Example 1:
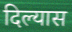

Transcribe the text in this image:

दिल्यास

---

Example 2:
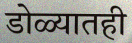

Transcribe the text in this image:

डोळ्यातही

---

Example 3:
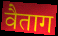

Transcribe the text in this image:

वैताग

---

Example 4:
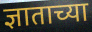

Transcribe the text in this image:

ज्ञाताच्या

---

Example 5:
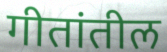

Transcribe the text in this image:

गीतांतील